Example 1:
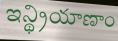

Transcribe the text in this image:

ఇన్థ్రియాణాం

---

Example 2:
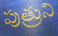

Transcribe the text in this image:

పుత్రుని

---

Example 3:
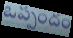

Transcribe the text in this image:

ఒప్పందం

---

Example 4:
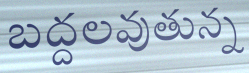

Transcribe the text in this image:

బద్దలవుతున్న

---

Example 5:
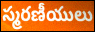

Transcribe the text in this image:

స్మరణీయులు